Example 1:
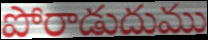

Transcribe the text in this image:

పోరాడుదుము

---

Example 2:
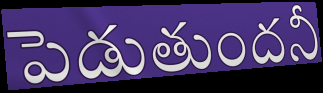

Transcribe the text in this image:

పెడుతుందనీ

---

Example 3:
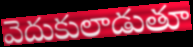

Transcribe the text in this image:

వెదుకులాడుతూ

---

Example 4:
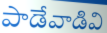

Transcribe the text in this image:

పాడేవాడివి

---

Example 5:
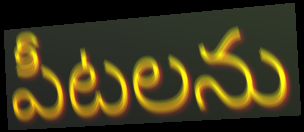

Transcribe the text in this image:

పీటలను